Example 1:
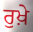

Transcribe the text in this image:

ਰੁਖ਼ੇ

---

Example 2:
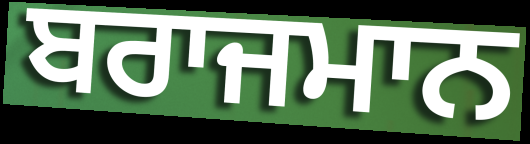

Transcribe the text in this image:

ਬਰਾਜਮਾਨ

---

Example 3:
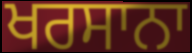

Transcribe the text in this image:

ਖਰਸਾਨਾ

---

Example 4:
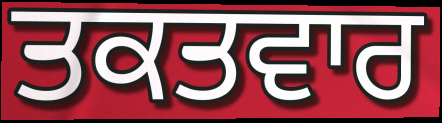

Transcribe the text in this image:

ਤਕਤਵਾਰ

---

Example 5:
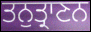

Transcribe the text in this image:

ਤਨੁਤ੍ਰਾਣਨ